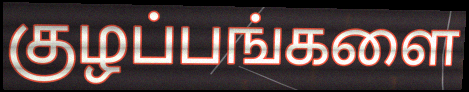
குழப்பங்களை